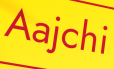
Aajchi